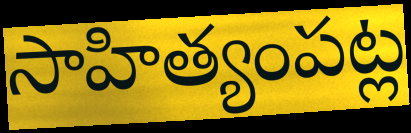
సాహిత్యంపట్ల